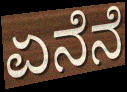
ಏನೆನೆ